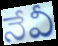
నేవీ